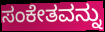
ಸಂಕೇತವನ್ನು